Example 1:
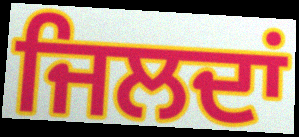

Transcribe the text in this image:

ਜਿਲਦਾਂ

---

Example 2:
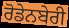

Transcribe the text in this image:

ਰੋਡੇਨਬੇਰੀ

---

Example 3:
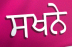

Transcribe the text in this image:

ਸਖਨੇ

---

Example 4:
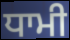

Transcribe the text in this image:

ਧਾਮੀ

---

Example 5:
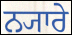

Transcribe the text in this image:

ਨ੍ਯਾਰੇ